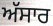
ਅੱਸਾਰ